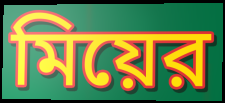
মিয়ের